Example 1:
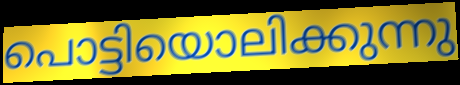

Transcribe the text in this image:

പൊട്ടിയൊലിക്കുന്നു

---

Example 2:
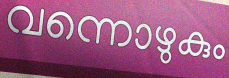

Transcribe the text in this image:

വന്നൊഴുകും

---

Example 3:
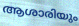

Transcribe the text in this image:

ആശാരിയും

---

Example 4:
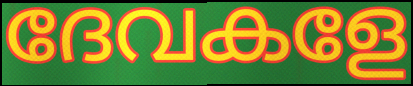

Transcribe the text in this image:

ദേവകളേ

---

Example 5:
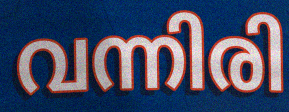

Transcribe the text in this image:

വന്നിരി